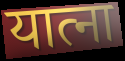
यात्ना